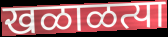
खळाळत्या